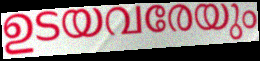
ഉടയവരേയും